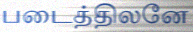
படைத்திலனே